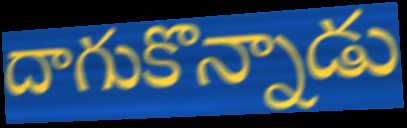
దాగుకొన్నాడు